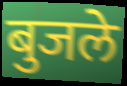
बुजले